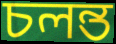
চলন্ত